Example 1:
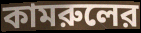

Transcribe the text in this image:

কামরুলের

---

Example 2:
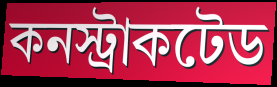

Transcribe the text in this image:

কনস্ট্রাকটেড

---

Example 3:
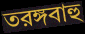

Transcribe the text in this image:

তরঙ্গবাহু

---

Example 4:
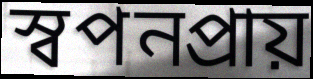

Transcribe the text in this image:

স্বপনপ্রায়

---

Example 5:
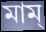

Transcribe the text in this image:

মাম্